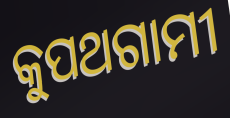
କୁପଥଗାମୀ